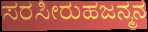
ಸರಸೀರುಹಜನ್ಮನ